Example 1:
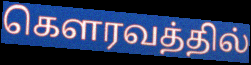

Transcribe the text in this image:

கௌரவத்தில்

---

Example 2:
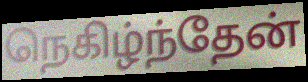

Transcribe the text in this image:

நெகிழ்ந்தேன்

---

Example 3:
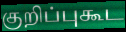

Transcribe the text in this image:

குறிப்புகூட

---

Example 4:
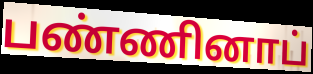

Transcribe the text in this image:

பண்ணினாப்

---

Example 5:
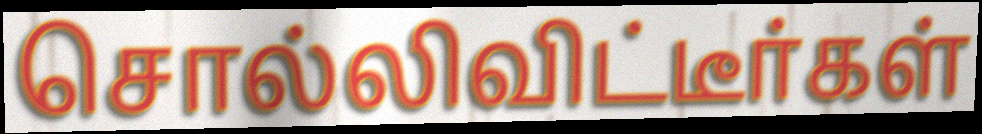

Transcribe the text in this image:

சொல்லிவிட்டீர்கள்